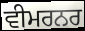
ਵੀਮਰਨਰ